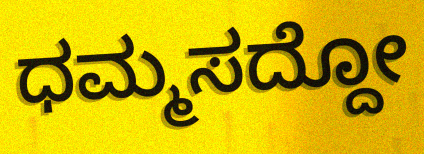
ಧಮ್ಮಸದ್ದೋ